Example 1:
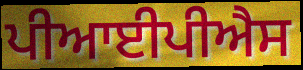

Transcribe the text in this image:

ਪੀਆਈਪੀਐਸ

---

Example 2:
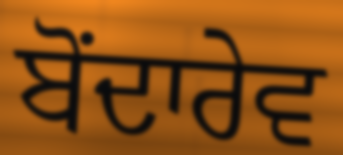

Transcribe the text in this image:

ਬੋਂਦਾਰੇਵ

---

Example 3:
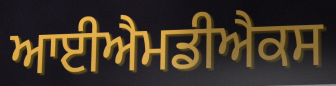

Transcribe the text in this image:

ਆਈਐਮਡੀਐਕਸ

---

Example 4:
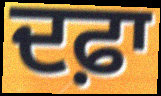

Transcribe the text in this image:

ਦਫ਼ਾ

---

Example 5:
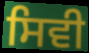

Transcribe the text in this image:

ਸਿਵੀ